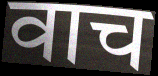
वाच